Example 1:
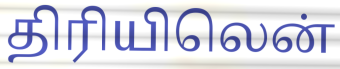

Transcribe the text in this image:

திரியிலென்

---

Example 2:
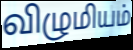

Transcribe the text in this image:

விழுமியம்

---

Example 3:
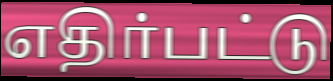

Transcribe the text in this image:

எதிர்பட்டு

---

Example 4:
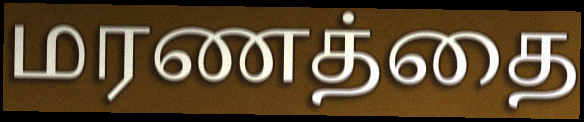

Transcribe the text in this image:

மரணத்தை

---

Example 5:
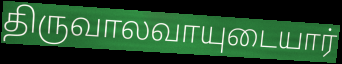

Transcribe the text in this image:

திருவாலவாயுடையார்